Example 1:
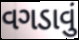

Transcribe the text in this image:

વગડાવું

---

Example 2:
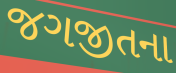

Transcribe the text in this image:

જગજીતના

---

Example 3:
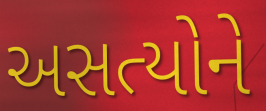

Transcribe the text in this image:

અસત્યોને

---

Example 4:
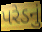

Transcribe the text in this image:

પરેડનું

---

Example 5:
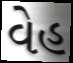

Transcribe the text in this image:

વેહ